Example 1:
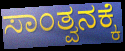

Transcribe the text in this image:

ಸಾಂತ್ವನಕ್ಕೆ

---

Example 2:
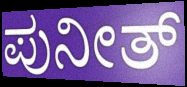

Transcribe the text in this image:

ಪುನೀತ್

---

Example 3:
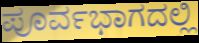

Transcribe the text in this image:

ಪೂರ್ವಭಾಗದಲ್ಲಿ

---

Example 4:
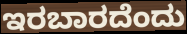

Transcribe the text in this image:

ಇರಬಾರದೆಂದು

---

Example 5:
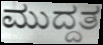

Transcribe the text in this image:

ಮುದ್ದತ